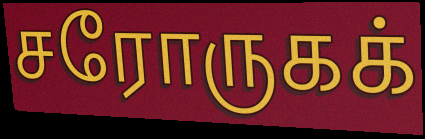
சரோருகக்